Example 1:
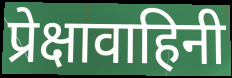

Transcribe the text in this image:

प्रेक्षावाहिनी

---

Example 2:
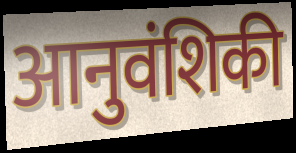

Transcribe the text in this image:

आनुवंशिकी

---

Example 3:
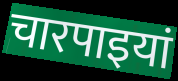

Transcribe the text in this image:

चारपाइयां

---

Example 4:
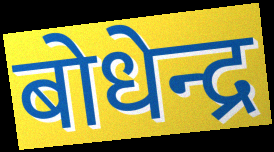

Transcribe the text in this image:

बोधेन्द्र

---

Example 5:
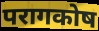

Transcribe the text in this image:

परागकोष